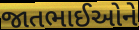
જાતભાઈઓને